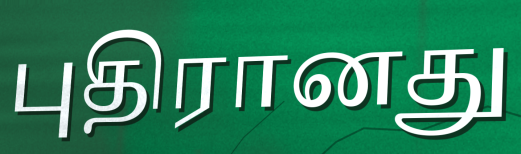
புதிரானது